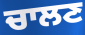
ਚਾਲਣ